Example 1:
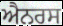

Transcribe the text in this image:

ਐਨਰਸ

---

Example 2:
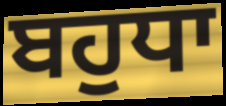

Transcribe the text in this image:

ਬਹੁਧਾ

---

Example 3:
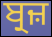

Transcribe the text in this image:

ਬ੍ਰਜ਼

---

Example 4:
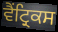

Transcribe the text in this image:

ਵੈਂਟ੍ਰਿਕਸ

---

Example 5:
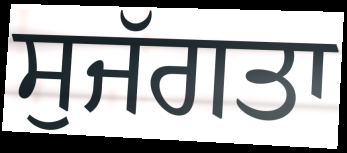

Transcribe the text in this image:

ਸੁਜੱਗਤਾ